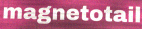
magnetotail